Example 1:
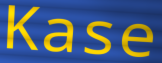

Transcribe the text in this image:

Kase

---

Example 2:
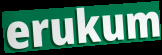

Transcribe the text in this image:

erukum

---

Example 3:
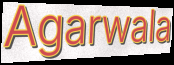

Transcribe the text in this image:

Agarwala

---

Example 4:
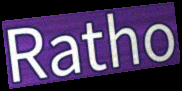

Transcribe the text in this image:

Ratho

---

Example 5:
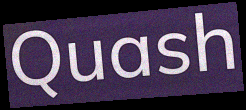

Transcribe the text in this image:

Quash